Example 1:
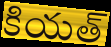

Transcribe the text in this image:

కియత్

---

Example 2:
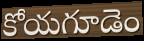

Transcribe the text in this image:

కోయగూడెం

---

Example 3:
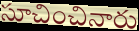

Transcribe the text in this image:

సూచించినారు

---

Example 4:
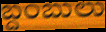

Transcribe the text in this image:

బ్దంబులు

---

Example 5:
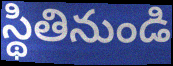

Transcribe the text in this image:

స్థితినుండి